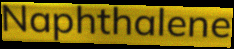
Naphthalene